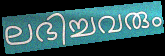
ലഭിച്ചവരും